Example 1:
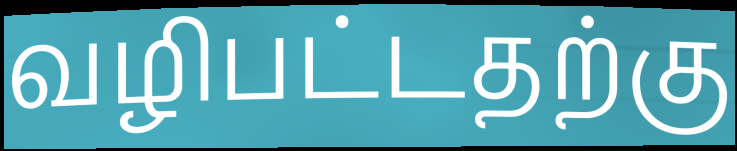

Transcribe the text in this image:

வழிபட்டதற்கு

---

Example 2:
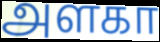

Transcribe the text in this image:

அளகா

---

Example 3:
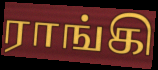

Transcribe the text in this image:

ராங்கி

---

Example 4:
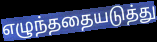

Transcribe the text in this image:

எழுந்ததையடுத்து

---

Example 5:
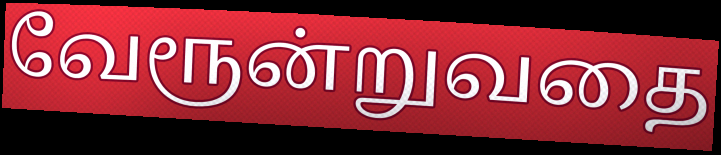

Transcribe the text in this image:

வேரூன்றுவதை